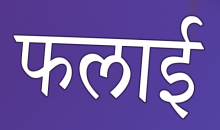
फलाई